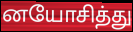
னயோசித்து